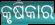
କୃଷିକାର